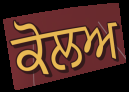
ਕੋਲਅ